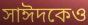
সাঈদকেও